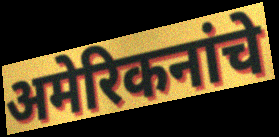
अमेरिकनांचे